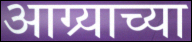
आग्र्याच्या